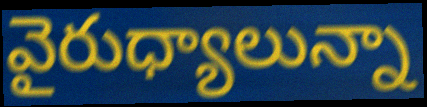
వైరుధ్యాలున్నా